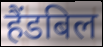
हैंडबिल